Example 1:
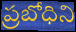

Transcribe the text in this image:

ప్రబోధిని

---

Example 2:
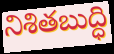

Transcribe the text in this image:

నిశితబుద్ధి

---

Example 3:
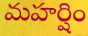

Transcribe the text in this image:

మహర్షిం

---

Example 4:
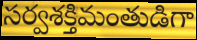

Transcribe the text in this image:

సర్వశక్తిమంతుడిగా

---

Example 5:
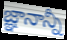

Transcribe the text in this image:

జ్ఞానాన్నీ